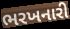
ભરખનારી